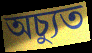
অচ্যুত